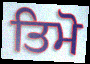
ਤਿਮੋ